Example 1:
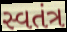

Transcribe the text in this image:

સ્વતંત્ર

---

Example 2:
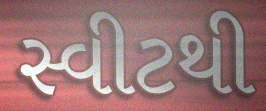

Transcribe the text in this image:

સ્વીટથી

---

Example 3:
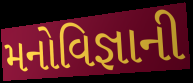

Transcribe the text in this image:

મનોવિજ્ઞાની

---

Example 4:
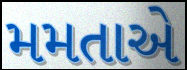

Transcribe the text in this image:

મમતાએ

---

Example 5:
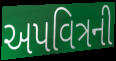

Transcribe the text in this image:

અપવિત્રની